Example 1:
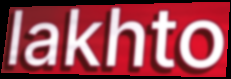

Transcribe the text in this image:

lakhto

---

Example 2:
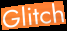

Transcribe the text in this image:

Glitch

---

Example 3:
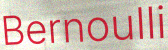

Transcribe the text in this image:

Bernoulli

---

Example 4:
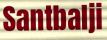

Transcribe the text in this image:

Santbalji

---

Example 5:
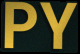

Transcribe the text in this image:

PY